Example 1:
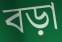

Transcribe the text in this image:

বড়া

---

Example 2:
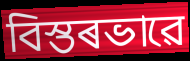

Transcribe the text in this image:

বিস্তৰভাৱে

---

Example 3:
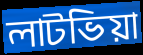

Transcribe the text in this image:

লাটভিয়া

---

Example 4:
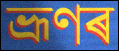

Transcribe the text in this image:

ভ্ৰূণৰ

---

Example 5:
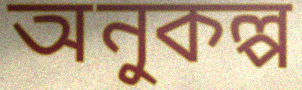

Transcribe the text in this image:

অনুকল্প